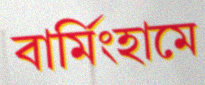
বার্মিংহামে